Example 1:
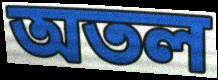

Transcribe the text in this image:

অতল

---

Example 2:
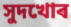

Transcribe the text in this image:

সুদখোৰ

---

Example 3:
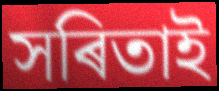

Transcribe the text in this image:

সৰিতাই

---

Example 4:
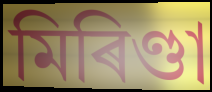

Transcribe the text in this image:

মিৰিণ্ডা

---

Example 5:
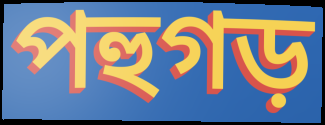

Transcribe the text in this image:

পহুগড়